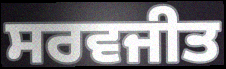
ਸਰਵਜੀਤ